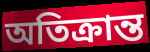
অতিক্রান্ত